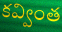
కవ్వింత